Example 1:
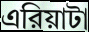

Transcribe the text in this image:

এরিয়াটা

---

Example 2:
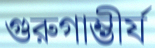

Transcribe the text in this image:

গুরুগাম্ভীর্য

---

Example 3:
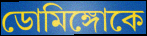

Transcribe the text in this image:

ডোমিঙ্গোকে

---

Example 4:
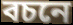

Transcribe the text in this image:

বচনে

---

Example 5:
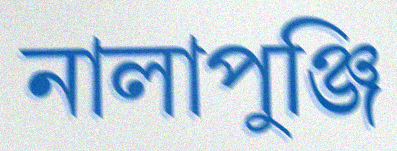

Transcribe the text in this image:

নালাপুঞ্জি